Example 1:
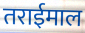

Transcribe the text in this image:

तराईमाल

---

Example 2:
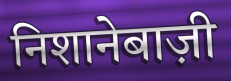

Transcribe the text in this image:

निशानेबाज़ी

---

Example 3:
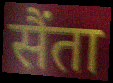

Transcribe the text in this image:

सैंता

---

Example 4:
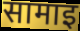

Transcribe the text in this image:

सामाइ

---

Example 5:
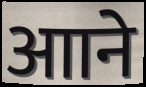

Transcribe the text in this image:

आाने